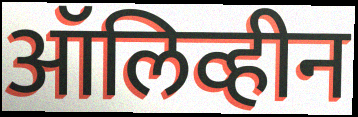
ऑलिव्हीन